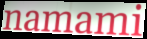
namami